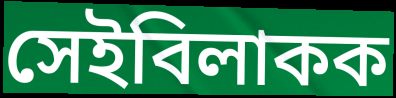
সেইবিলাকক